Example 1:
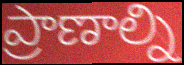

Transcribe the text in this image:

ప్రాణాల్ని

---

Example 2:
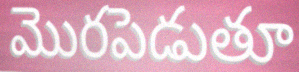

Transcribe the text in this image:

మొరపెడుతూ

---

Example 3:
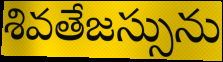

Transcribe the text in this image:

శివతేజస్సును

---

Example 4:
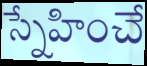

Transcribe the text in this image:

స్నేహించే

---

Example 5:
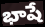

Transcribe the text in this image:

భాషే